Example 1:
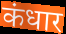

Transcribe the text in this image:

कंधार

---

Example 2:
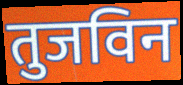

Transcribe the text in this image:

तुजविन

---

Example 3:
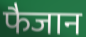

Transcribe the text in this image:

फैजान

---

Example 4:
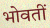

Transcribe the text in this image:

भोवतीं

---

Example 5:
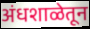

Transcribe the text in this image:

अंधशाळेतून